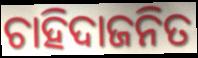
ଚାହିଦାଜନିତ